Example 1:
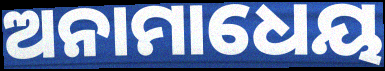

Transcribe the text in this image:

ଅନାମାଧେୟ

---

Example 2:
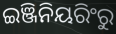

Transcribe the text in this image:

ଇଞ୍ଜିନିୟରିଂରୁ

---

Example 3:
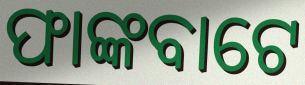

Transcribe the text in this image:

ଫାଙ୍କବାଟେ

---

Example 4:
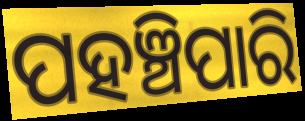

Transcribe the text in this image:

ପହଞ୍ଚିପାରି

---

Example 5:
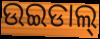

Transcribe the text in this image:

ଉଇଡାଲ୍